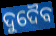
ଦୁଦୈବ